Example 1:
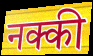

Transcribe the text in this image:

नक्की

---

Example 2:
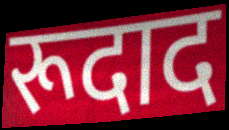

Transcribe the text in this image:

रूदाद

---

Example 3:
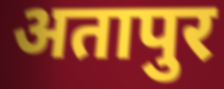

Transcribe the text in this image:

अतापुर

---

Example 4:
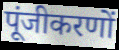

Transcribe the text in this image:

पूंजीकरणों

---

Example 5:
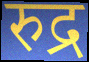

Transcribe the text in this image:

रुद्र